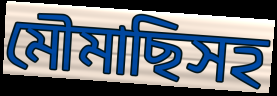
মৌমাছিসহ